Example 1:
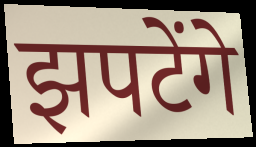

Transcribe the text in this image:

झपटेंगे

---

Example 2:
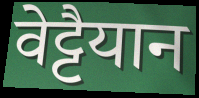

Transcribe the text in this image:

वेट्टैयान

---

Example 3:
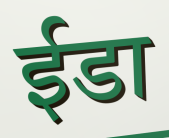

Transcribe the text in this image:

ईडा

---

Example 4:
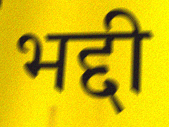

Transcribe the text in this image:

भद्दी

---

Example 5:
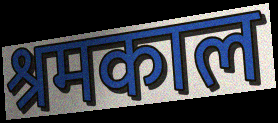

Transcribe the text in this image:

श्रमकाल